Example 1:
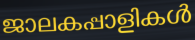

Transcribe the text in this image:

ജാലകപ്പാളികൾ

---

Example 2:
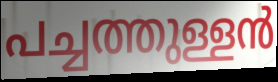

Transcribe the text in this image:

പച്ചത്തുള്ളൻ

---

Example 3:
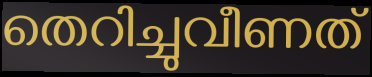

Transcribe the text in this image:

തെറിച്ചുവീണത്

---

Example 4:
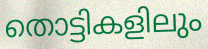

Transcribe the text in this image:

തൊട്ടികളിലും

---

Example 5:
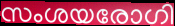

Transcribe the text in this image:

സംശയരോഗി